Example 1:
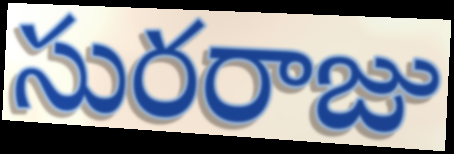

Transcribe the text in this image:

సురరాజు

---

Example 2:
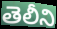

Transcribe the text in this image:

తెలీని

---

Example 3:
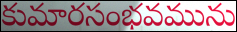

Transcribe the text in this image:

కుమారసంభవమును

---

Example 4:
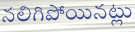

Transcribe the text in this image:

నలిగిపోయినట్లు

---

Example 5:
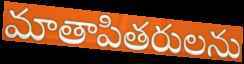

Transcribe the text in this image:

మాతాపితరులను